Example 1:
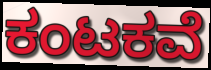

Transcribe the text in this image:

ಕಂಟಕವೆ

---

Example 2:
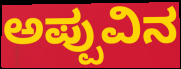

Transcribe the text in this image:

ಅಪ್ಪುವಿನ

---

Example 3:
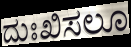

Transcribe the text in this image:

ದುಃಖಿಸಲೂ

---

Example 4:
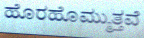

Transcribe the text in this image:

ಹೊರಹೊಮ್ಮುತ್ತವೆ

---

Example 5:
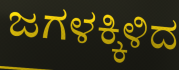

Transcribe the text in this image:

ಜಗಳಕ್ಕಿಳಿದ